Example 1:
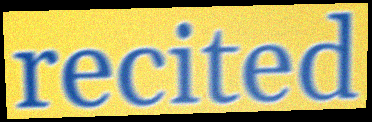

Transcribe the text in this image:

recited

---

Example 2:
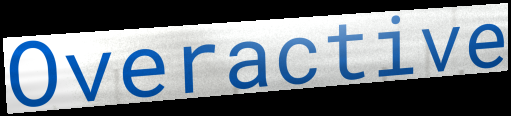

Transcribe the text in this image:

Overactive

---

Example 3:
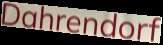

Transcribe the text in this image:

Dahrendorf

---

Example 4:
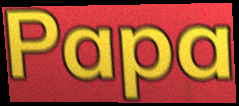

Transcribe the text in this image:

Papa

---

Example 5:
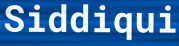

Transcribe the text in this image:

Siddiqui